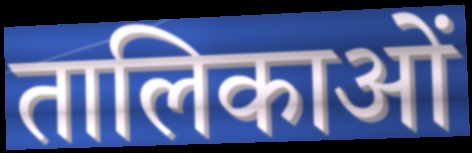
तालिकाओं